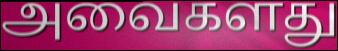
அவைகளது